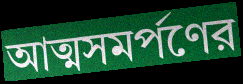
আত্মসমর্পণের